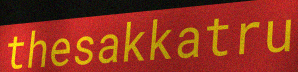
thesakkatru